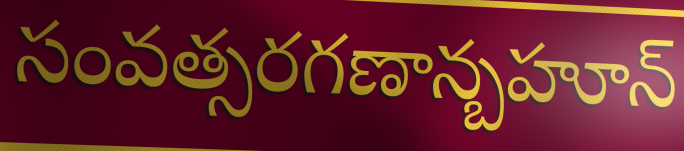
సంవత్సరగణాన్బహూన్